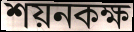
শয়নকক্ষ